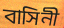
বাসিনী